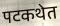
पटकथेत